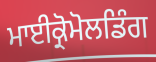
ਮਾਈਕ੍ਰੋਮੋਲਡਿੰਗ